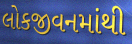
લોકજીવનમાંથી